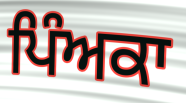
ਪਿੰਅਕਾ